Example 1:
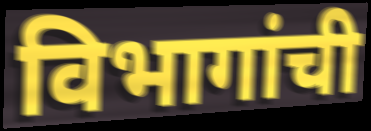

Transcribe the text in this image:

विभागांची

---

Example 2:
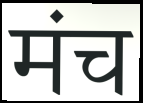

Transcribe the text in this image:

मंच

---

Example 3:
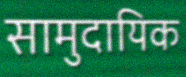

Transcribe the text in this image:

सामुदायिक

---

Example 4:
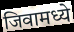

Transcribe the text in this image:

जिवामध्ये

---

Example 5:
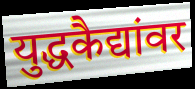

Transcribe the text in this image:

युद्धकैद्यांवर